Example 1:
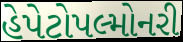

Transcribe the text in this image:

હેપેટોપલ્મોનરી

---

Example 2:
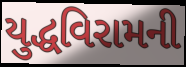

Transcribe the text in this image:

યુદ્ધવિરામની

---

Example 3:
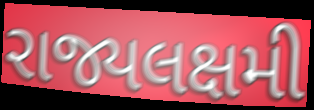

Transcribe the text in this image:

રાજ્યલક્ષમી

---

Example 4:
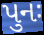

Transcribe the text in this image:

પુનઃ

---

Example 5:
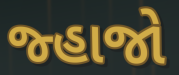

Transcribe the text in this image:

જ્હાજો